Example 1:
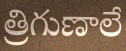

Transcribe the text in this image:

త్రిగుణాలే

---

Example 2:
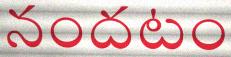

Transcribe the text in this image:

నందటం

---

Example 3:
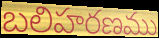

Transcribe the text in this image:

బలిహరణము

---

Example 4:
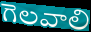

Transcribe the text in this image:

గెలవాలి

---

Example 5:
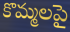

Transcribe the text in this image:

కొమ్మలపై